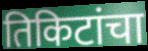
तिकिटांचा